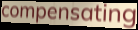
compensating